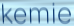
kemie